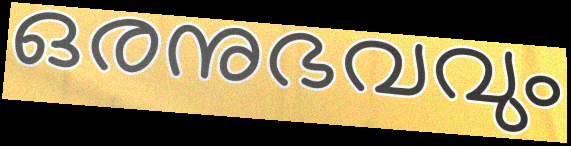
ഒരനുഭവവും